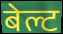
बेल्‍ट